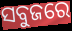
ସବୁଜରେ